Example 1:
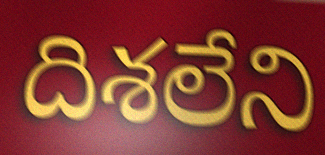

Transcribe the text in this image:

దిశలేని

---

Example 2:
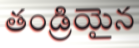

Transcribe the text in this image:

తండ్రియైన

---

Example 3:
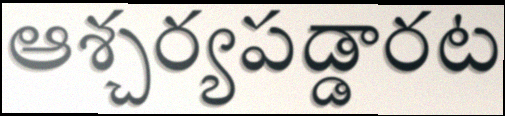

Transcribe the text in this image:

ఆశ్చర్యపడ్డారట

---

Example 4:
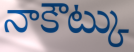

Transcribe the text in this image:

నాకౌట్కు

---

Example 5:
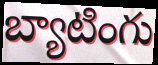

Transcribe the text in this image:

బ్యాటింగు